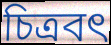
চিত্ৰবৎ